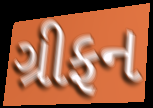
ગ્રીફન